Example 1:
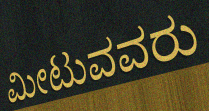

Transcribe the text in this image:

ಮೀಟುವವರು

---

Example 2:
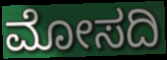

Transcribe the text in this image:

ಮೋಸದಿ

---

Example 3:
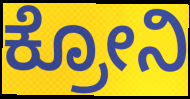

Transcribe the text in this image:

ಕ್ರೋನಿ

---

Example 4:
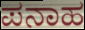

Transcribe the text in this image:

ಪನಾಹ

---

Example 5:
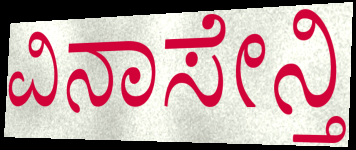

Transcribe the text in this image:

ವಿನಾಸೇನ್ತಿ